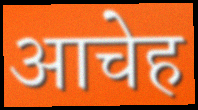
आचेह